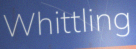
Whittling